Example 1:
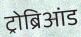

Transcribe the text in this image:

ट्रोब्रिआंड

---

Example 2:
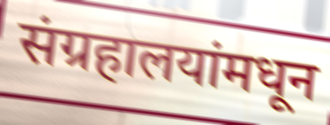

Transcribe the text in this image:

संग्रहालयांमधून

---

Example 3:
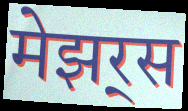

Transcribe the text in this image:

मेझर्स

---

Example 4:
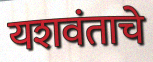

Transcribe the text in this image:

यशवंताचे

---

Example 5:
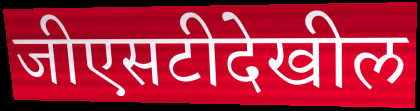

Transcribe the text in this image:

जीएसटीदेखील